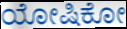
ಯೋಷಿಕೋ